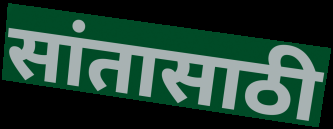
सांतासाठी